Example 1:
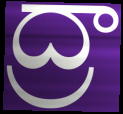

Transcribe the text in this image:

ద్రా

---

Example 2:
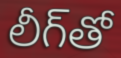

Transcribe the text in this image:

లీగ్‌తో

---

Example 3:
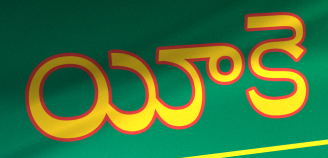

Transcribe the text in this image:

యీకె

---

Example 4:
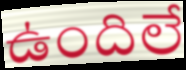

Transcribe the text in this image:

ఉందిలే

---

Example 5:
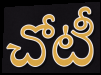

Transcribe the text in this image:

చోటీ